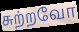
சுற்றவோ